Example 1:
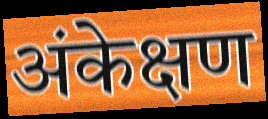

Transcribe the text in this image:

अंकेक्षण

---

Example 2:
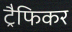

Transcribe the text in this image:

ट्रैफिकर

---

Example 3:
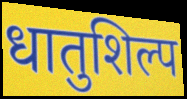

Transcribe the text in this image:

धातुशिल्प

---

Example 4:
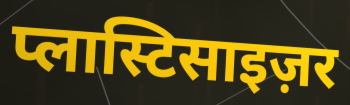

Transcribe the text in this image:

प्लास्टिसाइज़र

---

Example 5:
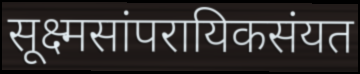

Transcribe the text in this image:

सूक्ष्मसांपरायिकसंयत